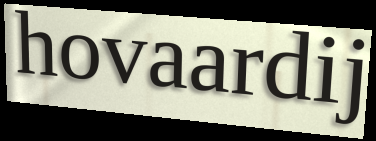
hovaardij